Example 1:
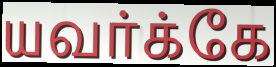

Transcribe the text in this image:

யவர்க்கே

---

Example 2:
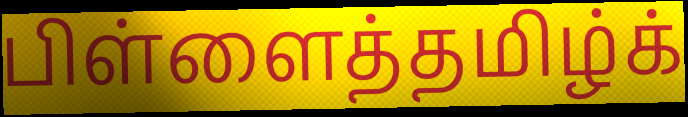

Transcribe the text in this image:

பிள்ளைத்தமிழ்க்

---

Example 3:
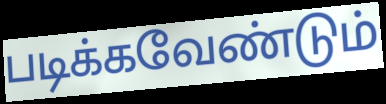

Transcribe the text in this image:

படிக்கவேண்டும்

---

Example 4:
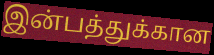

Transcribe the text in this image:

இன்பத்துக்கான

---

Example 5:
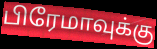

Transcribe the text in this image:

பிரேமாவுக்கு